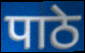
पाठे